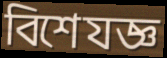
বিশেযজ্ঞ